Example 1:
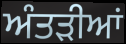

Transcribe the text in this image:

ਅੰਤੜੀਆਂ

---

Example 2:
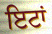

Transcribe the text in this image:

ਇਟਾਂ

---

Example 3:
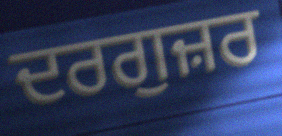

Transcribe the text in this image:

ਦਰਗੁਜ਼ਰ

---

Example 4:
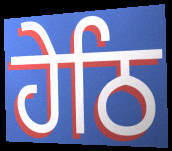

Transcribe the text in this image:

ਹੇਠਿ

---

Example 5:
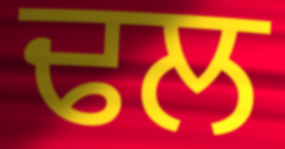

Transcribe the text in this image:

ਢਲ